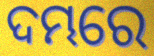
ଦମ୍ଭରେ